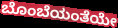
ಬೊಂಬೆಯಂತೆಯೇ